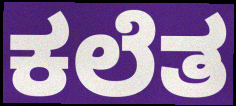
ಕಲೆತ